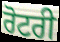
ਰੋਟਰੀ